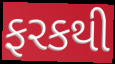
ફરકથી